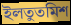
ইলতুতমিশ